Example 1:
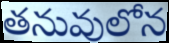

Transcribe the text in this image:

తనువులోన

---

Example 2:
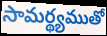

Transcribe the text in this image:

సామర్థ్యముతో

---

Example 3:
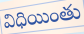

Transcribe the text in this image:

విధియింతు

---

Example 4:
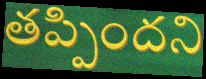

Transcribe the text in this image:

తప్పిందని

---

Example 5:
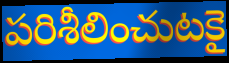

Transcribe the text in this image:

పరిశీలించుటకై